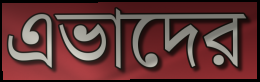
এভাদের